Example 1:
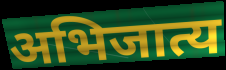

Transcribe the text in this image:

अभिजात्य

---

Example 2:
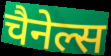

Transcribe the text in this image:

चैनेल्स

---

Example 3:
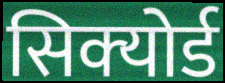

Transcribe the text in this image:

सिक्‍योर्ड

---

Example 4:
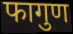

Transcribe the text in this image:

फागुण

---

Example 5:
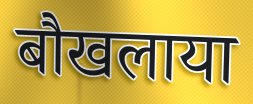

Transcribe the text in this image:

बौखलाया